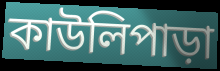
কাউলিপাড়া